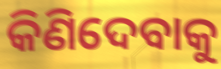
କିଣିଦେବାକୁ